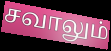
சவாலும்